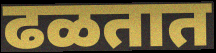
ढळतात